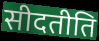
सीदतीति